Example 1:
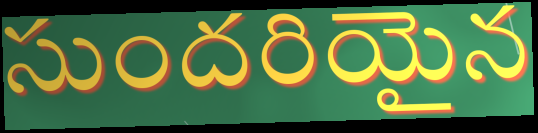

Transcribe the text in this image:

సుందరియైన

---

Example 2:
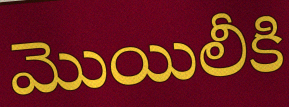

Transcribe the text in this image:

మొయిలీకి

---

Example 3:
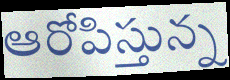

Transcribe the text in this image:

ఆరోపిస్తున్న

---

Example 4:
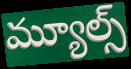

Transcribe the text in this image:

మ్యూల్స్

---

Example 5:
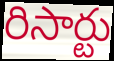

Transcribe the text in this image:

రిసార్టు